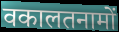
वकालतनामों